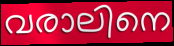
വരാലിനെ